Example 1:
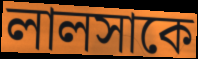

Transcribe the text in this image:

লালসাকে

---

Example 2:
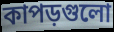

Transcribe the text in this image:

কাপড়গুলো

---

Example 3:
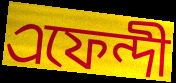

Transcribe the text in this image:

এফেন্দী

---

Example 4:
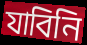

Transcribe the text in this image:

যাবিনি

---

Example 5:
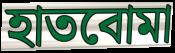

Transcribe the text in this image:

হাতবোমা